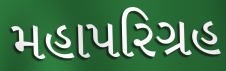
મહાપરિગ્રહ